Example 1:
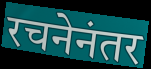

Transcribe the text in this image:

रचनेनंतर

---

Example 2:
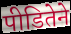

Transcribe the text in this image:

पीडितेने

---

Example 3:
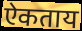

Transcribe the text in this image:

ऐकताय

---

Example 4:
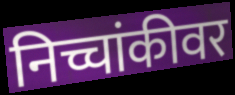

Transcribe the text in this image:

निच्चांकीवर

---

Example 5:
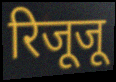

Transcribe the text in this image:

रिजूजू